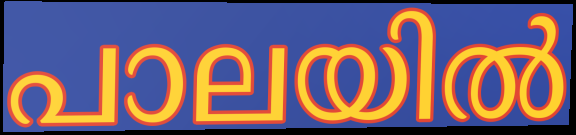
പാലയിൽ